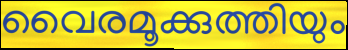
വൈരമൂക്കുത്തിയും